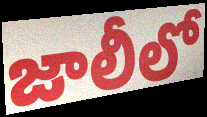
జాలీలో